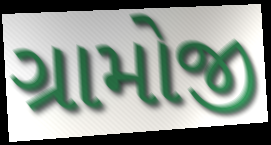
ગ્રામોજી